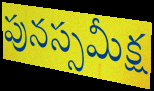
పునస్సమీక్ష